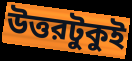
উত্তরটুকুই